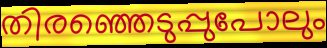
തിരഞ്ഞെടുപ്പുപോലും